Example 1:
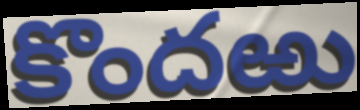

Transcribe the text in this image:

కొందఱు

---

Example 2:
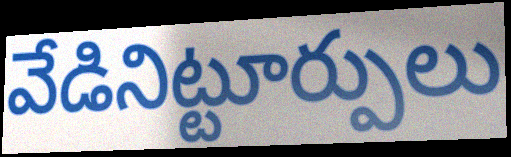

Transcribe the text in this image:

వేడినిట్టూర్పులు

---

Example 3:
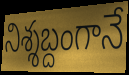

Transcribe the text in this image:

నిశ్శబ్దంగానే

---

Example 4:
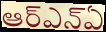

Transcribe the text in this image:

ఆర్ఎన్ఏ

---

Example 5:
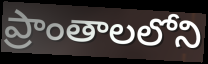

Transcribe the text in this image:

ప్రాంతాలలోని